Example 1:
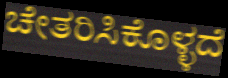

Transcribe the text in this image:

ಚೇತರಿಸಿಕೊಳ್ಳದೆ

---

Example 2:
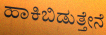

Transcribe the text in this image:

ಹಾಕಿಬಿಡುತ್ತೇನೆ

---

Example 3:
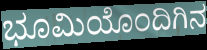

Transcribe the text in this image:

ಭೂಮಿಯೊಂದಿಗಿನ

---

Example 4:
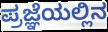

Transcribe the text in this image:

ಪ್ರಜ್ಞೆಯಲ್ಲಿನ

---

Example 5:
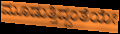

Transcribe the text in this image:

ಮೂಡುತ್ತಿದ್ದಂತೆಯೇ